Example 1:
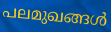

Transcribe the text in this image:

പലമുഖങ്ങൾ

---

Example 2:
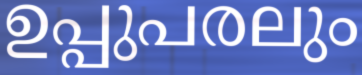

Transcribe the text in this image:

ഉപ്പുപരലും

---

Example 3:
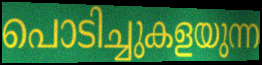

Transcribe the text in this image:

പൊടിച്ചുകളയുന്ന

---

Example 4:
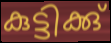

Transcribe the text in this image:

കുട്ടിക്കു്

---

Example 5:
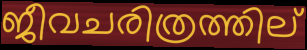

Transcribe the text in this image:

ജീവചരിത്രത്തില്